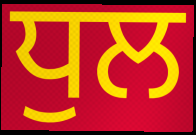
ਧੁਲ